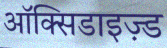
ऑक्सिडाइज़्ड